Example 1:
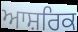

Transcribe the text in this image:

ਆਸ਼ਰਿਕ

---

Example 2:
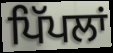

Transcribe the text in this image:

ਪਿੱਪਲਾਂ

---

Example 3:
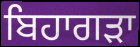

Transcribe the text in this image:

ਬਿਹਾਗੜਾ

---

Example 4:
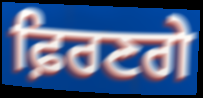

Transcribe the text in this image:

ਫ਼ਿਰਣਗੇ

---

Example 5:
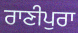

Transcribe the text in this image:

ਰਾਣੀਪੁਰਾ